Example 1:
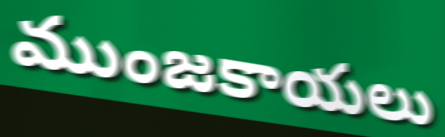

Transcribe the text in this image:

ముంజకాయలు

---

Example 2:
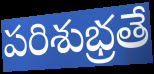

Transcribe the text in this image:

పరిశుభ్రతే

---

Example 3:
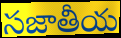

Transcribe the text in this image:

సజాతీయ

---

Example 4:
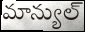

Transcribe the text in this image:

మాన్యుల్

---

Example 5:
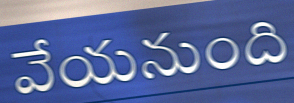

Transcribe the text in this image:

వేయనుంది